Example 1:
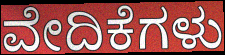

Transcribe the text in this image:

ವೇದಿಕೆಗಳು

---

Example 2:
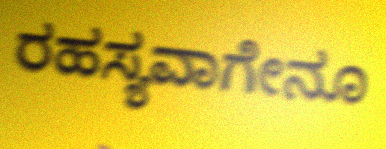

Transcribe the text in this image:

ರಹಸ್ಯವಾಗೇನೂ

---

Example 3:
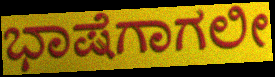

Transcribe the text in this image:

ಭಾಷೆಗಾಗಲೀ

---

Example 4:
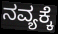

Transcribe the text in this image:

ನವ್ಯಕ್ಕೆ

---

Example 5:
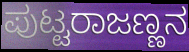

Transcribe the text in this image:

ಪುಟ್ಟರಾಜಣ್ಣನ